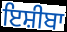
ਇਸ਼ੀਬਾ